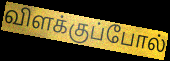
விளக்குப்போல்